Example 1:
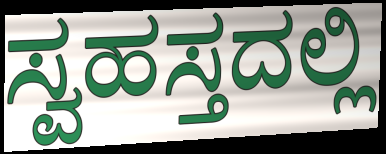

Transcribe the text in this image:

ಸ್ವಹಸ್ತದಲ್ಲಿ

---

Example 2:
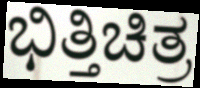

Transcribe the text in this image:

ಭಿತ್ತಿಚಿತ್ರ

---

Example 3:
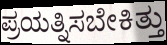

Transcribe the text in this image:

ಪ್ರಯತ್ನಿಸಬೇಕಿತ್ತು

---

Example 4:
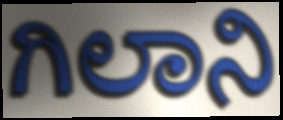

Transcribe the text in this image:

ಗಿಲಾನಿ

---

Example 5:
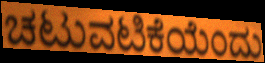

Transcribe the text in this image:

ಚಟುವಟಿಕೆಯೆಂದು